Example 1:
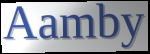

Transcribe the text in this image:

Aamby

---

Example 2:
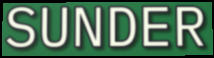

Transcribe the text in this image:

SUNDER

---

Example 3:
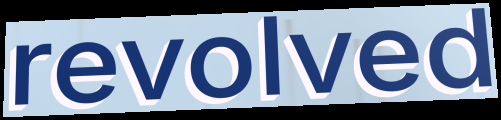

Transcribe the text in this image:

revolved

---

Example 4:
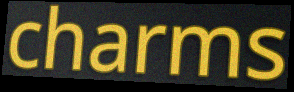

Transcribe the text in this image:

charms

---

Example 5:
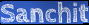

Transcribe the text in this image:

Sanchit